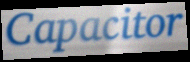
Capacitor